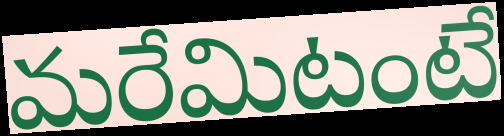
మరేమిటంటే